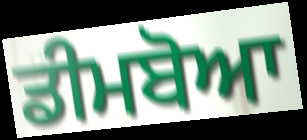
ਡੀਮਬੋਆ